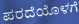
ಪರದೆಯೊಳಗೆ